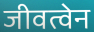
जीवत्वेन